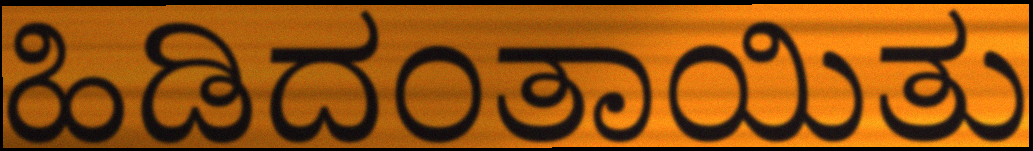
ಹಿಡಿದಂತಾಯಿತು